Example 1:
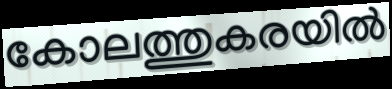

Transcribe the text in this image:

കോലത്തുകരയിൽ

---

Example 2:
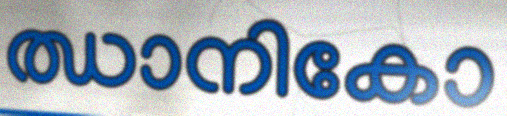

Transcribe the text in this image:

ഝാനികോ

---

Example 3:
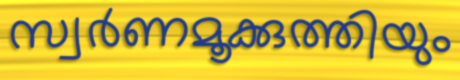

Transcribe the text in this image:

സ്വർണമൂക്കുത്തിയും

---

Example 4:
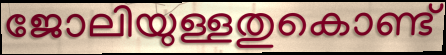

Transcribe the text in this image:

ജോലിയുള്ളതുകൊണ്ട്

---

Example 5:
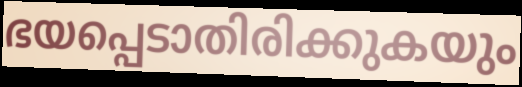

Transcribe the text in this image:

ഭയപ്പെടാതിരിക്കുകയും